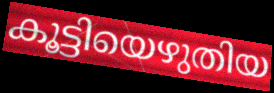
കൂട്ടിയെഴുതിയ